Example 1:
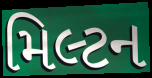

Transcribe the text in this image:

મિલ્ટન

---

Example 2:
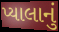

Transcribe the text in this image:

પ્યાલાનું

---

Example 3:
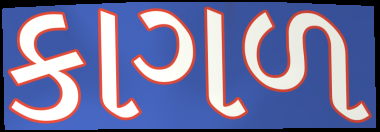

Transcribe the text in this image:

કાગળ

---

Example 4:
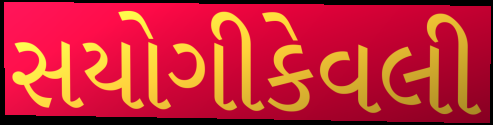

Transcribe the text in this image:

સયોગીકેવલી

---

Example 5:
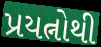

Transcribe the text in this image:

પ્રયત્નોથી